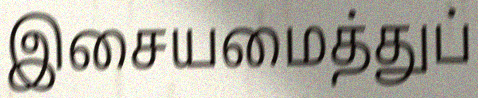
இசையமைத்துப்